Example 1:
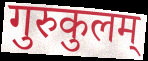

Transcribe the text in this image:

गुरुकुलम्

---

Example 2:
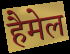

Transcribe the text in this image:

हैमेल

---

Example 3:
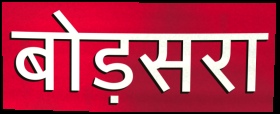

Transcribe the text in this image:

बोड़सरा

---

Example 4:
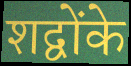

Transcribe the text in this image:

शद्वोंके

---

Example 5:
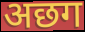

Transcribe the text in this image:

अछग